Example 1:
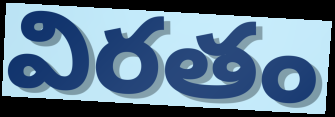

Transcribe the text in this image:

విరతం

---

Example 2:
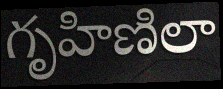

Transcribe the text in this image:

గృహిణిలా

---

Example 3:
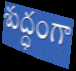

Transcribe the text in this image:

శుద్ధంగా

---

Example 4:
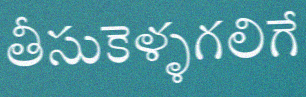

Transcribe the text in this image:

తీసుకెళ్ళగలిగే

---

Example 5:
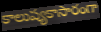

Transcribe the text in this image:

కాలుష్యకాసారంగా